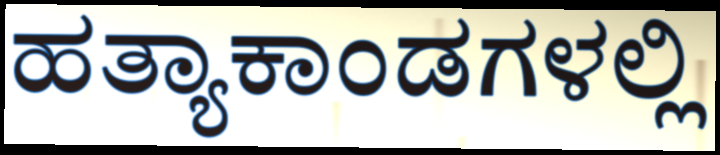
ಹತ್ಯಾಕಾಂಡಗಳಲ್ಲಿ